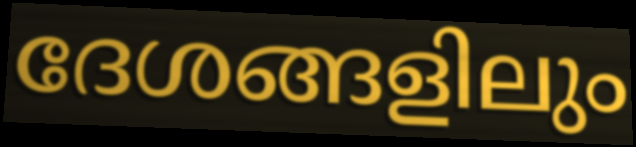
ദേശങ്ങളിലും